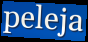
peleja